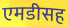
एमडीसह